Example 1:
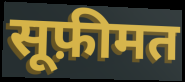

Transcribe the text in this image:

सूफ़ीमत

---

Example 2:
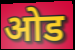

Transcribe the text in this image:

ओड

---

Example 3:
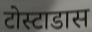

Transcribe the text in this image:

टोस्टाडास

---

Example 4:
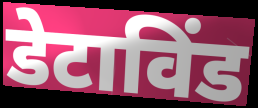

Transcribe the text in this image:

डेटाविंड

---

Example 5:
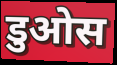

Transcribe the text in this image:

डुओस